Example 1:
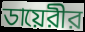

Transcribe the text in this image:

ডায়েরীর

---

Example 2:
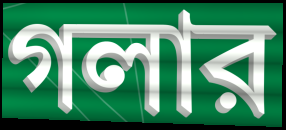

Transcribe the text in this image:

গলার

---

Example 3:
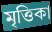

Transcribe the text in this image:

মৃত্তিকা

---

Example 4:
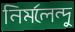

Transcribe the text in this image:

নির্মলেন্দু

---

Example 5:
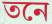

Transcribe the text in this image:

তনে